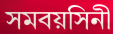
সমবয়সিনী